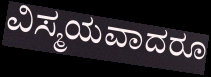
ವಿಸ್ಮಯವಾದರೂ